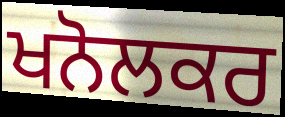
ਖਨੋਲਕਰ